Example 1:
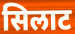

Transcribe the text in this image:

सिलाट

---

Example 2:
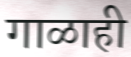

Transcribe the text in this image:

गाळाही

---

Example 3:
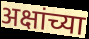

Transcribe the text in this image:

अक्षांच्या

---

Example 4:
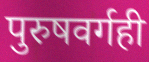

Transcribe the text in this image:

पुरुषवर्गही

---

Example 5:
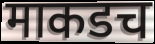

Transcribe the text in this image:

माकडच